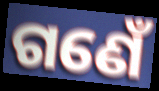
ଗଣେଁ